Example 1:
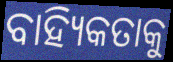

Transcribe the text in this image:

ବାହ୍ୟିକତାକୁ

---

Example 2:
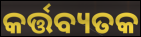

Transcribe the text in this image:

କର୍ତ୍ତବ୍ୟତକ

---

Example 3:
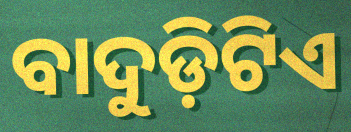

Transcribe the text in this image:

ବାଦୁଡ଼ିଟିଏ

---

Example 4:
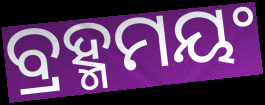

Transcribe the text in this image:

ବ୍ରହ୍ମମୟଂ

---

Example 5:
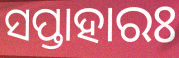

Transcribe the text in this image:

ସପ୍ତାହାରଃ